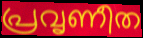
പ്രവൃണീത